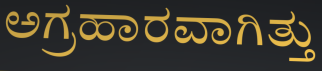
ಅಗ್ರಹಾರವಾಗಿತ್ತು